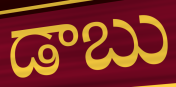
డాబు